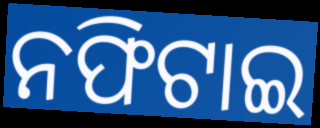
ନଫିଟାଇ